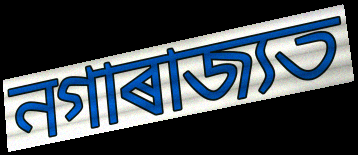
নগাৰাজ্যত